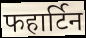
फहार्टिन